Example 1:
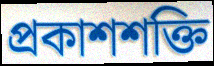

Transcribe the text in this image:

প্রকাশশক্তি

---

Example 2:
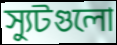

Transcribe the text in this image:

স্যুটগুলো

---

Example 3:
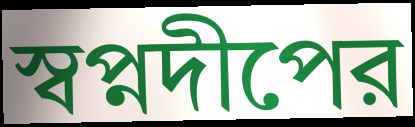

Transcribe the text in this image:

স্বপ্নদীপের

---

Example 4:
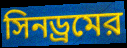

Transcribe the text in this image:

সিনড্রমের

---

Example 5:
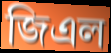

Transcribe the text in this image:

জিএল